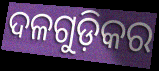
ଦଳଗୁଡ଼ିକର